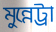
মুন্নেট্ৰা